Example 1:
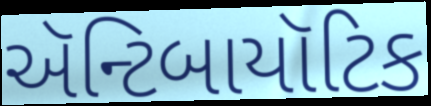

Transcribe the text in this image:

ઍન્ટિબાયૉટિક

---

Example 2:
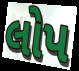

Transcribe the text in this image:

લોપ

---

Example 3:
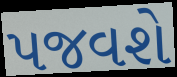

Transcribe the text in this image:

પજવશે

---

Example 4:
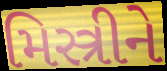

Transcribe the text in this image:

મિસ્ત્રીને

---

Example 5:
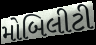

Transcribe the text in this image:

મોબિલીટી